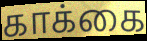
காக்கை